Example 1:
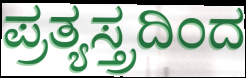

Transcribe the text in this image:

ಪ್ರತ್ಯಸ್ತ್ರದಿಂದ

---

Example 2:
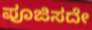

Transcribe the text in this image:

ಪೂಜಿಸದೇ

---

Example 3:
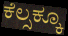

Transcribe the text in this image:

ಕೆಲ್ಸಕ್ಕೂ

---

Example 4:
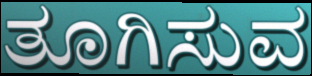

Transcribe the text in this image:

ತೂಗಿಸುವ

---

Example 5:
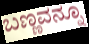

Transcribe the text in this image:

ಬಣ್ಣವನ್ನೂ